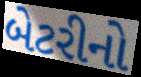
બેટરીનો